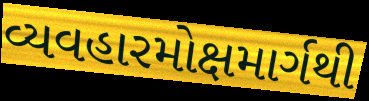
વ્યવહારમોક્ષમાર્ગથી